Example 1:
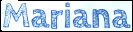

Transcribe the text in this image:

Mariana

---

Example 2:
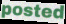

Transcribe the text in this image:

posted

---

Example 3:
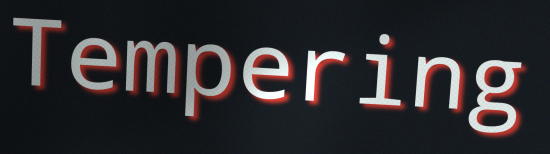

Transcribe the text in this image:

Tempering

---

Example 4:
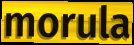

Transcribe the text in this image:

morula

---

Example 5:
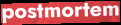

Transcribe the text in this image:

postmortem